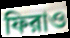
ফিরাও